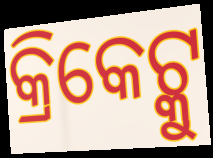
କ୍ରିକେଟ୍କୁ